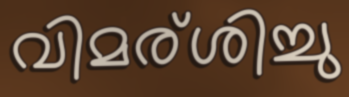
വിമര്ശിച്ചു